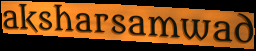
aksharsamwad